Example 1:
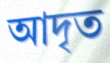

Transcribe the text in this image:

আদৃত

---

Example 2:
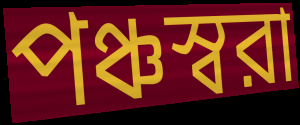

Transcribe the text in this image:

পঞ্চস্বরা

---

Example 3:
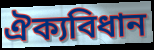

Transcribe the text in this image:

ঐক্যবিধান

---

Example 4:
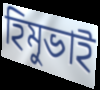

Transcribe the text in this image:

হিমুভাই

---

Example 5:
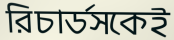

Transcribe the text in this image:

রিচার্ডসকেই